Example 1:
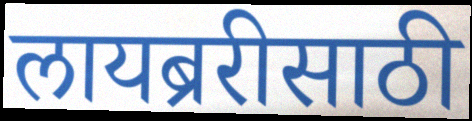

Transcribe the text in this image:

लायब्ररीसाठी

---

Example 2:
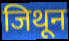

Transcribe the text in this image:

जिथून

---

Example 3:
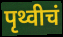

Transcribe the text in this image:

पृथ्वीचं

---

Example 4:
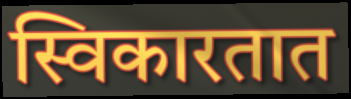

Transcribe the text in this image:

स्विकारतात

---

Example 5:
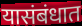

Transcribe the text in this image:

यासंबंधात